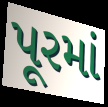
પૂરમાં